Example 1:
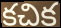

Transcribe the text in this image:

కచిక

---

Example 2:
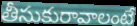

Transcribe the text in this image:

తీసుకురావాలంటే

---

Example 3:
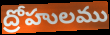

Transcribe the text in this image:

ద్రోహులము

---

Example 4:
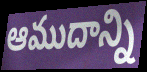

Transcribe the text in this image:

ఆముదాన్ని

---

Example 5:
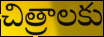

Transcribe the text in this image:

చిత్రాలకు